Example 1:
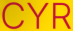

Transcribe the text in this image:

CYR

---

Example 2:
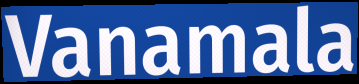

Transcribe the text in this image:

Vanamala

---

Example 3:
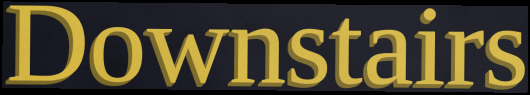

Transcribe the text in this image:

Downstairs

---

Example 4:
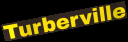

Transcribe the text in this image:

Turberville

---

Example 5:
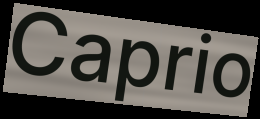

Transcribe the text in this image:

Caprio